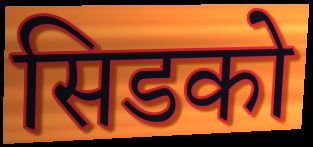
सिडको